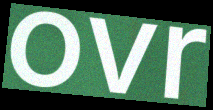
ovr